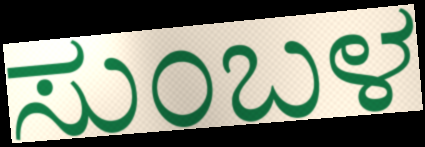
ಸುಂಬಳ